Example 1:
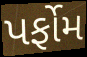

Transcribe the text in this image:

પર્ફોમ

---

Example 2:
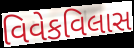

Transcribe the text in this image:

વિવેકવિલાસ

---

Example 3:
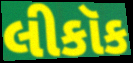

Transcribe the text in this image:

લીકૉક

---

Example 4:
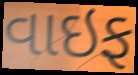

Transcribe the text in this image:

વાઇફ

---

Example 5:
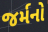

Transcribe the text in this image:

જર્મનો